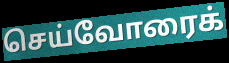
செய்வோரைக்